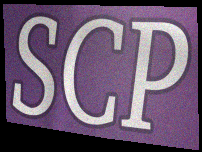
SCP